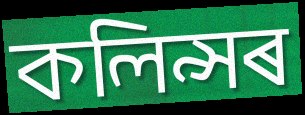
কলিন্সৰ